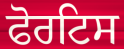
ਫੋਰਟਿਸ